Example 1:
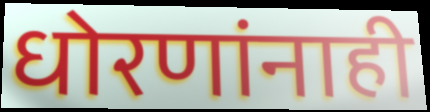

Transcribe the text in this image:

धोरणांनाही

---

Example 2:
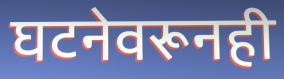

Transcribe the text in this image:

घटनेवरूनही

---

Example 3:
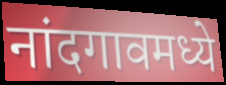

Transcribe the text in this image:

नांदगावमध्ये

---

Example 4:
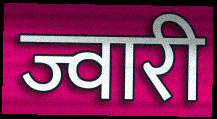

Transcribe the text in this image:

ज्वारी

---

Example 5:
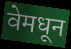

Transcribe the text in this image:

वेमधून